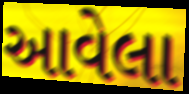
આવેલા